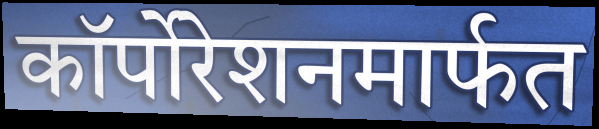
कॉर्पोरेशनमार्फत